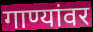
गाण्यांवर